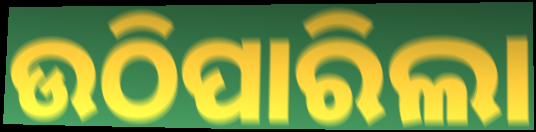
ଉଠିପାରିଲା